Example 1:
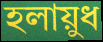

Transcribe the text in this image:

হলায়ুধ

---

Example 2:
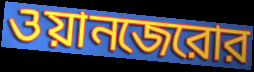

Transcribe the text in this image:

ওয়ানজেরোর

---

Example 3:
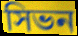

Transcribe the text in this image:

সিভন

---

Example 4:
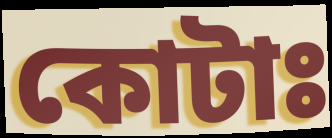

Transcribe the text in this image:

কোটাঃ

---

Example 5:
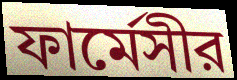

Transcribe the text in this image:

ফার্মেসীর